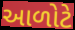
આળોટે